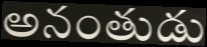
అనంతుడు